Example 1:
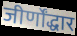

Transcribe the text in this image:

जीर्णोंद्धार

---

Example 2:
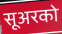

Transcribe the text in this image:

सूअरको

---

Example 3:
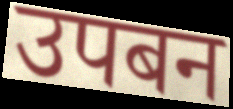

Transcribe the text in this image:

उपबन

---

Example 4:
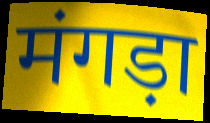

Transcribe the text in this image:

मंगड़ा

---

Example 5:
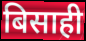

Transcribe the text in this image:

बिसाही